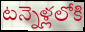
టన్నెళ్లలోకి